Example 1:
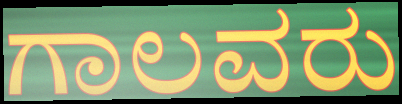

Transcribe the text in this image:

ಗಾಲವರು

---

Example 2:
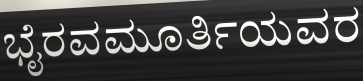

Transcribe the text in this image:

ಭೈರವಮೂರ್ತಿಯವರ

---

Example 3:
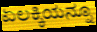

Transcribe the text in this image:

ಏಲಕ್ಕಿಯನ್ನೂ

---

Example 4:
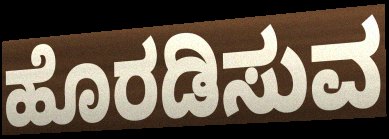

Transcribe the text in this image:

ಹೊರಡಿಸುವ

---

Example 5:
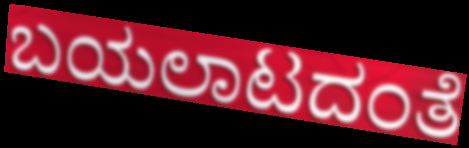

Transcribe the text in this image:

ಬಯಲಾಟದಂತೆ